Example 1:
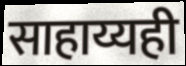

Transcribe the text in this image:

साहाय्यही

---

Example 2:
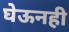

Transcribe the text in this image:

घेऊनही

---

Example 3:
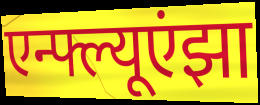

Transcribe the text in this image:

एन्फ्ल्यूएंझा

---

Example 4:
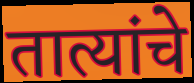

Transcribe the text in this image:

तात्यांचे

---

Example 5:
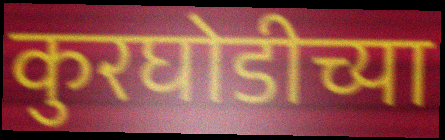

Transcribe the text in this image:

कुरघोडीच्या